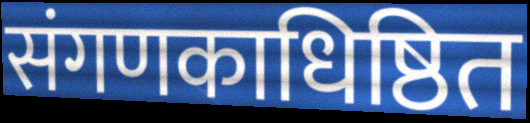
संगणकाधिष्ठित